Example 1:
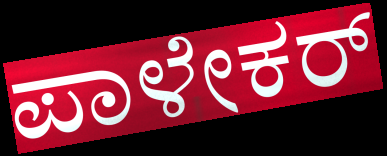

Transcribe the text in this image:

ಪಾಳೇಕರ್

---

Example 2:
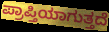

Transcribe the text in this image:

ಪ್ರಾಪ್ತಿಯಾಗುತ್ತದೆ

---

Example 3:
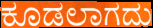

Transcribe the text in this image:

ಕೂಡಲಾಗದು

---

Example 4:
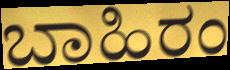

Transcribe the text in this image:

ಬಾಹಿರಂ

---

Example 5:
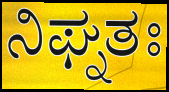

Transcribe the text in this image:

ನಿಘ್ನತಃ